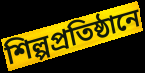
শিল্পপ্রতিষ্ঠানে